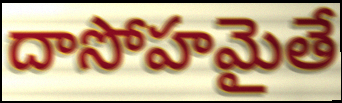
దాసోహమైతే